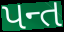
પન્ત